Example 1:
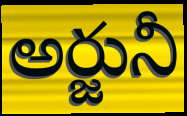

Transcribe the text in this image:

అర్జునీ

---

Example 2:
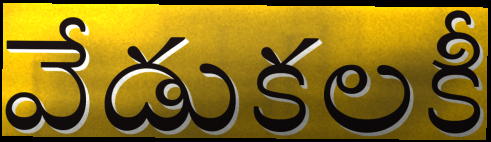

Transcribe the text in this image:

వేడుకలకీ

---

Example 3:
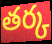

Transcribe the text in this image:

తర్క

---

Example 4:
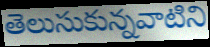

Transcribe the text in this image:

తెలుసుకున్నవాటిని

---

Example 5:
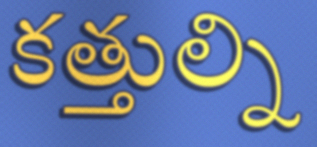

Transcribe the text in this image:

కత్తుల్ని